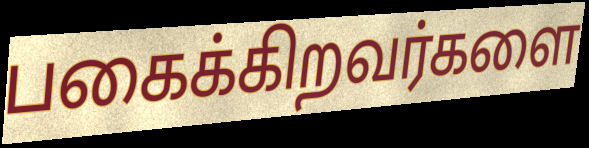
பகைக்கிறவர்களை